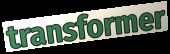
transformer